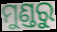
ମୁଣ୍ଡରୁ